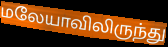
மலேயாவிலிருந்து